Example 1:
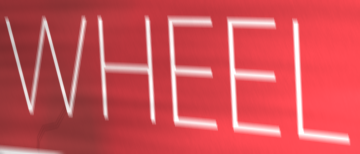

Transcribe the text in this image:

WHEEL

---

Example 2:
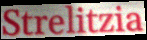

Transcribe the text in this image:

Strelitzia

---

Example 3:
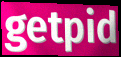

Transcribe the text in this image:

getpid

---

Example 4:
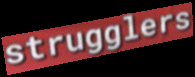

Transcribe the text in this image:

strugglers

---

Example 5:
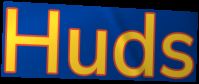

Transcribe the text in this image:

Huds